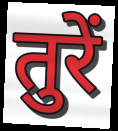
तुरें